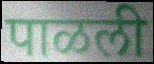
पाळली